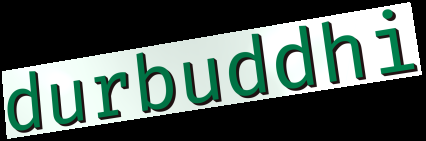
durbuddhi